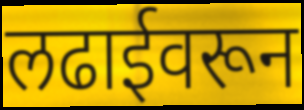
लढाईवरून